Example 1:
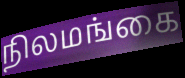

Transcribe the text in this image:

நிலமங்கை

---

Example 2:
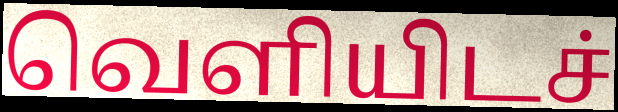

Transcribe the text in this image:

வெளியிடச்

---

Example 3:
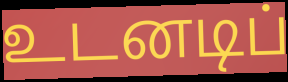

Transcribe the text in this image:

உடனடிப்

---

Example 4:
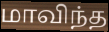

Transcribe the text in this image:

மாவிந்த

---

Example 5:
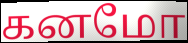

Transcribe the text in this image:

கனமோ